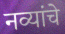
नव्यांचे